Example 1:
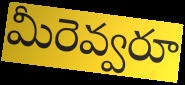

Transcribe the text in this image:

మీరెవ్వరూ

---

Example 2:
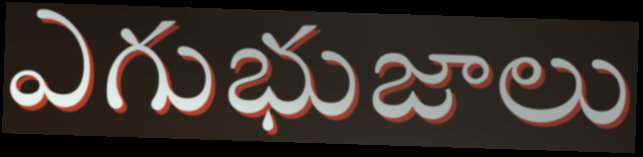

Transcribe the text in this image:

ఎగుభుజాలు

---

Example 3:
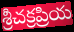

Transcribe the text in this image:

శ్రీచక్రప్రియ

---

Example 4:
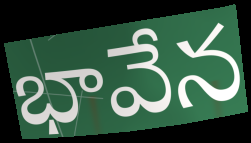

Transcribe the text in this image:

భావేన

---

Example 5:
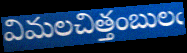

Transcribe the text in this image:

విమలచిత్తంబులఁ